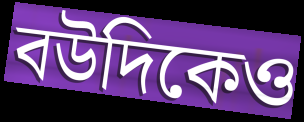
বউদিকেও